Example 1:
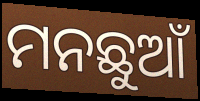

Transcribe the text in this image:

ମନଛୁଆଁ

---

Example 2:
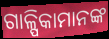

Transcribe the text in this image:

ଗାଳ୍ପିକାମାନଙ୍କ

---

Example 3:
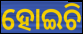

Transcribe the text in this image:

ହୋଇଚି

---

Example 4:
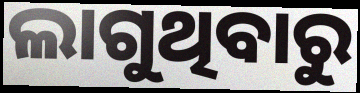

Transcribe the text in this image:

ଲାଗୁଥିବାରୁ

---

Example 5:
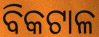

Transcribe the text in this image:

ବିକଟାଳ